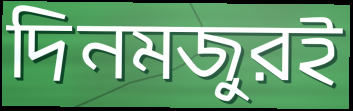
দিনমজুরই